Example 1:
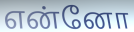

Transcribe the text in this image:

என்னோ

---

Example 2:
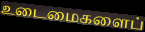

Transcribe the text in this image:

உடைமைகளைப்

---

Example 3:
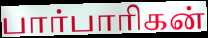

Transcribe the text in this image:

பார்பாரிகன்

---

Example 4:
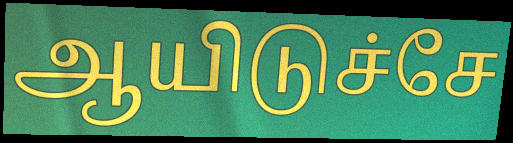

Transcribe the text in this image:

ஆயிடுச்சே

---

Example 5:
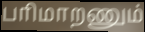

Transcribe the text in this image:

பரிமாறணும்